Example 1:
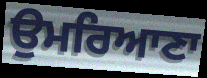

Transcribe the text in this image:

ਉਮਰਿਆਣਾ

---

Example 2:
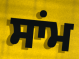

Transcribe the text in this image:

ਸਾਂਮ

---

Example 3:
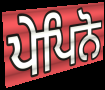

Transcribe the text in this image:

ਪੇਪਿਨੋ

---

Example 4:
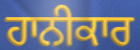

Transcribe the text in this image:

ਹਾਨੀਕਾਰ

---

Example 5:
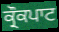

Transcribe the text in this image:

ਕ੍ਰੌਕਪਾਟ